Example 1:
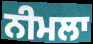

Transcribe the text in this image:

ਨੀਮਲਾ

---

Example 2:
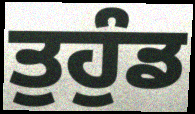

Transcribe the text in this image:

ਤੁਹੁੰਡ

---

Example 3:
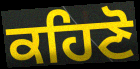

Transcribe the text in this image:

ਕਹਿਣੋ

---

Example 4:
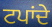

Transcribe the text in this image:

ਟਪਾਂਦੇ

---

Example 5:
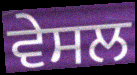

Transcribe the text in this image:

ਵੇਸਲ